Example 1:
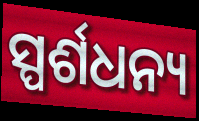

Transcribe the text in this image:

ସ୍ପର୍ଶଧନ୍ୟ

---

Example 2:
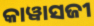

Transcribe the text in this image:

କାୱାସଜୀ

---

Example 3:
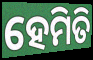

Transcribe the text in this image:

ହେମିତି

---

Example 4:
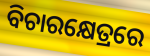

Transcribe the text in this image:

ବିଚାରକ୍ଷେତ୍ରରେ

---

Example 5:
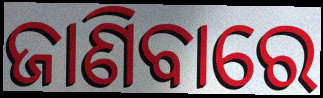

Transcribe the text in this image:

ଜାଣିବାରେ